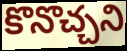
కొనొచ్చని